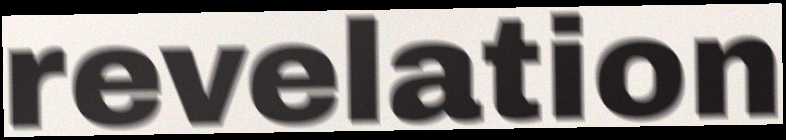
revelation